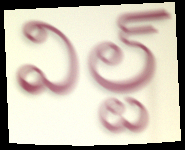
విల్ట్